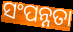
ସଂପନ୍ନତା